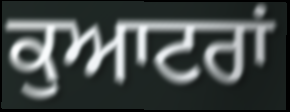
ਕੁਆਟਰਾਂ